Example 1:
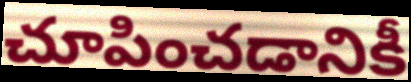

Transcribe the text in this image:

చూపించడానికీ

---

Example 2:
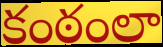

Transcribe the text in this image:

కంఠంలా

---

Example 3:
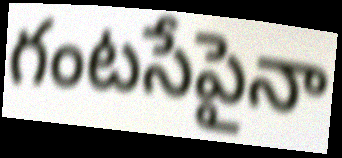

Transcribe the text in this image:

గంటసేపైనా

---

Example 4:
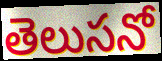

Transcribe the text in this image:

తెలుసనో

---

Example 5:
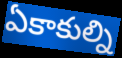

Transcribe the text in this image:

ఏకాకుల్ని